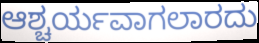
ಆಶ್ಚರ್ಯವಾಗಲಾರದು